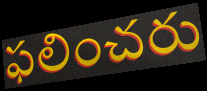
ఫలించరు